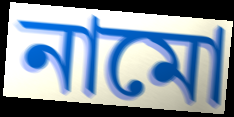
নামো